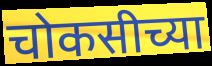
चोकसीच्या